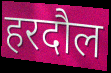
हरदौल